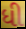
ધી